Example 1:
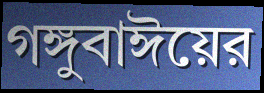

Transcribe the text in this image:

গঙ্গুবাঈয়ের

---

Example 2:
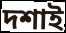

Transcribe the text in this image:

দশাই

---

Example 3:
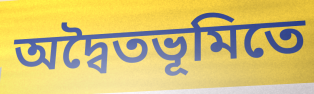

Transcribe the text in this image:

অদ্বৈতভূমিতে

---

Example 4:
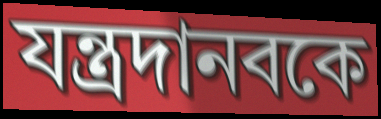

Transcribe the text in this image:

যন্ত্রদানবকে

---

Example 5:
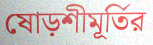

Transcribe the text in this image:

ষোড়শীমূর্তির